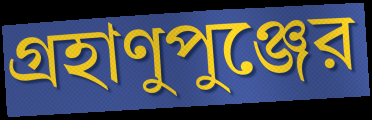
গ্রহাণুপুঞ্জের